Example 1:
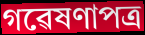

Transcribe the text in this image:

গৱেষণাপত্ৰ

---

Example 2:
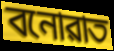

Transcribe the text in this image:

বনোৱাত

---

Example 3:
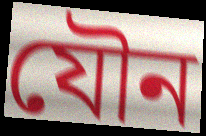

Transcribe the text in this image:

যৌন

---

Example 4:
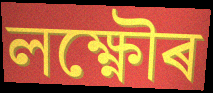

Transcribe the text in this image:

লক্ষ্ণৌৰ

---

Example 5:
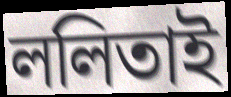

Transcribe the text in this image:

ললিতাই